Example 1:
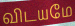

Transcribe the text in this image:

விடயமே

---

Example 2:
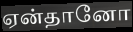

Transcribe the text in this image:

ஏன்தானோ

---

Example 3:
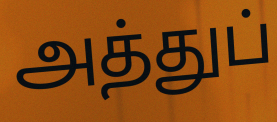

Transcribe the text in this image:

அத்துப்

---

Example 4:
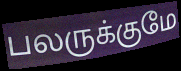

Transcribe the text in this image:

பலருக்குமே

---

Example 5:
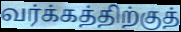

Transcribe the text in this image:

வர்க்கத்திற்குத்